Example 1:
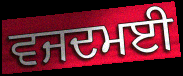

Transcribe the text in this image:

ਵਜਦਮਈ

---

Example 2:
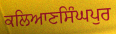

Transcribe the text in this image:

ਕਲਿਆਣਸਿੰਘਪੁਰ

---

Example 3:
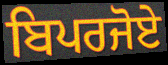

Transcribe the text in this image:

ਬਿਪਰਜੋਏ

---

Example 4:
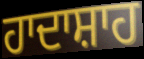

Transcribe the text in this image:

ਹਾਦਾਸ਼ਾਹ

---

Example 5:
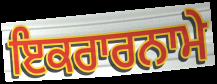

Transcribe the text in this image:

ਇਕਰਾਰਨਾਮੇ